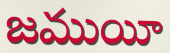
జముయీ